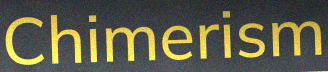
Chimerism